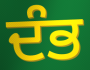
ਦੰਭ